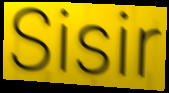
Sisir